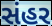
સંહર